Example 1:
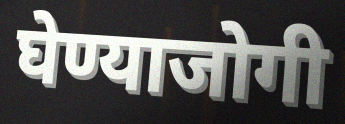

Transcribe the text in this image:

घेण्याजोगी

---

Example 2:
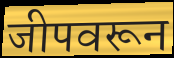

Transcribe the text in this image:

जीपवरून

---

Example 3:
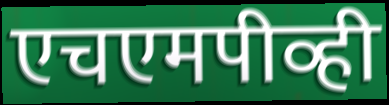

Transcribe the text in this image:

एचएमपीव्ही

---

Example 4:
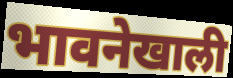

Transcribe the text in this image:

भावनेखाली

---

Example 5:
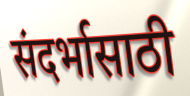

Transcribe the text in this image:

संदर्भासाठी